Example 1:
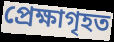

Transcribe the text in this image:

প্ৰেক্ষাগৃহত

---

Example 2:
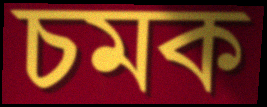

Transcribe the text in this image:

চমক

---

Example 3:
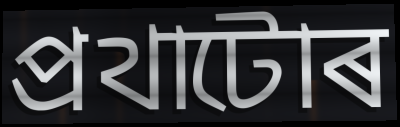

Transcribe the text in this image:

প্ৰথাটোৰ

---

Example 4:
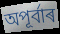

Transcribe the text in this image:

অপূৰ্বাৰ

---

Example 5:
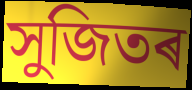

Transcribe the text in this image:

সুজিতৰ